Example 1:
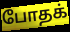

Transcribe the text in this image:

போதக்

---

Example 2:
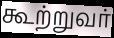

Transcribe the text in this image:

கூற்றுவர்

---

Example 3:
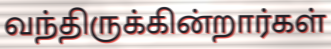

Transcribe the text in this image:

வந்திருக்கின்றார்கள்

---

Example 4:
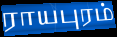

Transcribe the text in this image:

ராயபுரம்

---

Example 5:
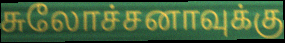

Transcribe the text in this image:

சுலோச்சனாவுக்கு